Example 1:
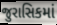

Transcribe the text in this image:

જુરાસિકમાં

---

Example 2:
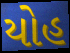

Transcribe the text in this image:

યોહ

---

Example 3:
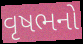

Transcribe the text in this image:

વૃષભનો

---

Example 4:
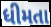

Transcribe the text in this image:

ધીમતા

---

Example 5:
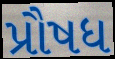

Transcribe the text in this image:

પ્રૌષધ